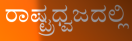
ರಾಷ್ಟ್ರಧ್ವಜದಲ್ಲಿ